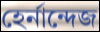
হের্নান্দেজ